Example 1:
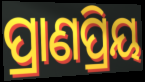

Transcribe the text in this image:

ପ୍ରାଣପ୍ରିୟ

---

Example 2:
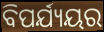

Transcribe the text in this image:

ବିପର୍ଯ୍ୟୟର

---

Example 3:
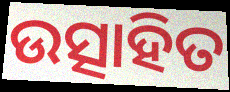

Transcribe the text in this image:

ଉତ୍ସାହିତ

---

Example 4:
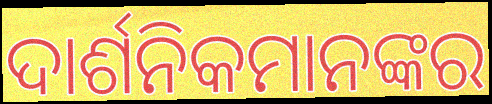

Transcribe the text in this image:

ଦାର୍ଶନିକମାନଙ୍କର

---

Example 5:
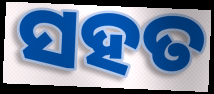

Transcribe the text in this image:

ସହତ